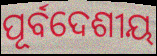
ପୂର୍ବଦେଶୀୟ